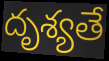
దృశ్యతే